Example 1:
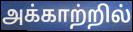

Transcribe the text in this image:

அக்காற்றில்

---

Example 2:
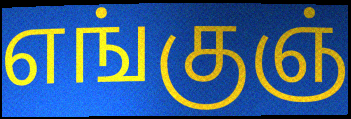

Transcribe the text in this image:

எங்குஞ்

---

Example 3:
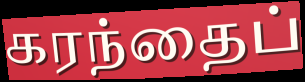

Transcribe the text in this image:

கரந்தைப்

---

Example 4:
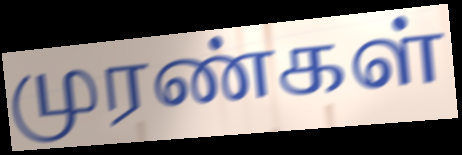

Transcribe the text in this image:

முரண்கள்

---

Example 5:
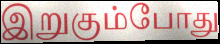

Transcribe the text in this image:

இறுகும்போது